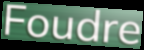
Foudre